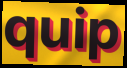
quip